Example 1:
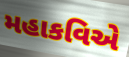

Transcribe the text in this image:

મહાકવિએ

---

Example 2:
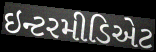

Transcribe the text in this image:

ઇન્ટરમીડિએટ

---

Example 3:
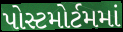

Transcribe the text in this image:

પોસ્ટમોર્ટમમાં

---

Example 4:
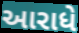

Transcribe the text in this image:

આરાધે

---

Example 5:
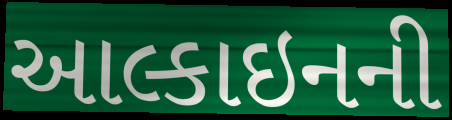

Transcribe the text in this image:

આલ્કાઇનની